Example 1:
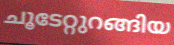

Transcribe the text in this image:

ചൂടേറ്റുറങ്ങിയ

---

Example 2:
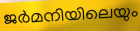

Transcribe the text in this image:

ജർമനിയിലെയും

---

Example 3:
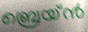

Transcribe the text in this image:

ബ്രെയ്ൻ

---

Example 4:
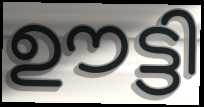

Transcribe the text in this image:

ഊട്ടി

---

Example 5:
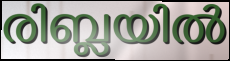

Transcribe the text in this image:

രിബ്ലയിൽ